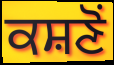
ਕਸ਼ਣੋਂ